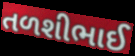
તળશીભાઈ